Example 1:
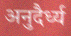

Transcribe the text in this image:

अनुदैर्ध्य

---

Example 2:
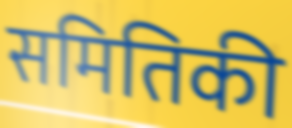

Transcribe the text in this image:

समितिकी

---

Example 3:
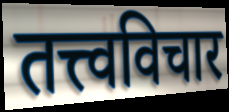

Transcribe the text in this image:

तत्त्वविचार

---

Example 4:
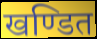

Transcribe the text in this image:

खण्डित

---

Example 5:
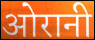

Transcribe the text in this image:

ओरानी